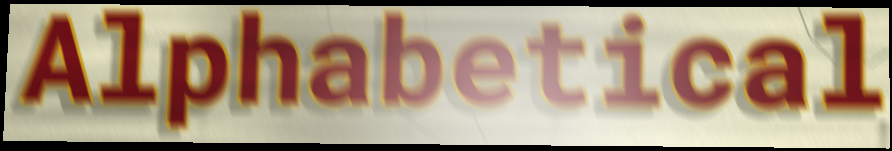
Alphabetical